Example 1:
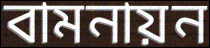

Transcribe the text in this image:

বামনায়ন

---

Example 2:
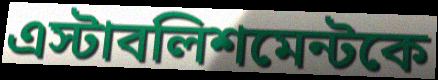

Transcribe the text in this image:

এস্টাবলিশমেন্টকে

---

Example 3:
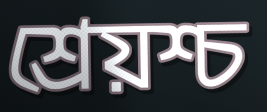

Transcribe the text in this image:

শ্রেয়শ্চ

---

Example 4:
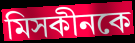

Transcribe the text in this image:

মিসকীনকে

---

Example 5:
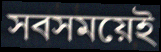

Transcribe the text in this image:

সবসময়েই